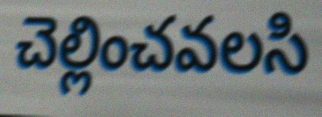
చెల్లించవలసి